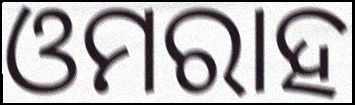
ଓମରାହ